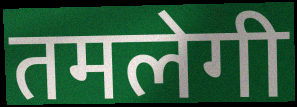
तमलेगी